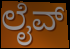
ಲೈವ್